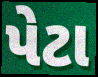
પેટા